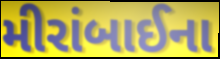
મીરાંબાઈના